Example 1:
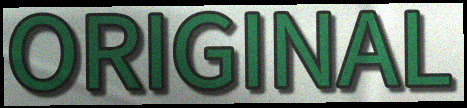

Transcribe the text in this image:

ORIGINAL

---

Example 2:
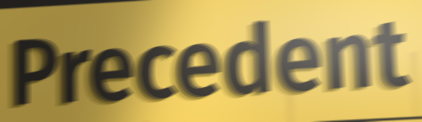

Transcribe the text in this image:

Precedent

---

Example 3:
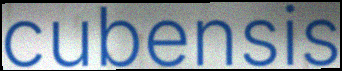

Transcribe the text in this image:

cubensis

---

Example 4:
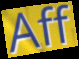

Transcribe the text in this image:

Aff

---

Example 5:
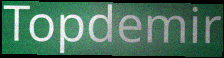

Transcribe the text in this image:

Topdemir